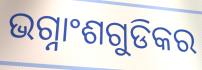
ଭଗ୍ନାଂଶଗୁଡିକର